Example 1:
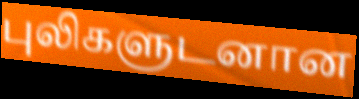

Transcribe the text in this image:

புலிகளுடனான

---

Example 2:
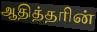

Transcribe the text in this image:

ஆதித்தரின்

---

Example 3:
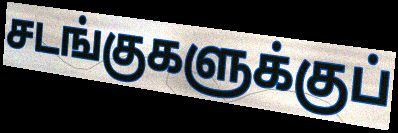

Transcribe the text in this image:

சடங்குகளுக்குப்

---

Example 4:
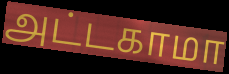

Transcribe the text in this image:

அட்டகாமா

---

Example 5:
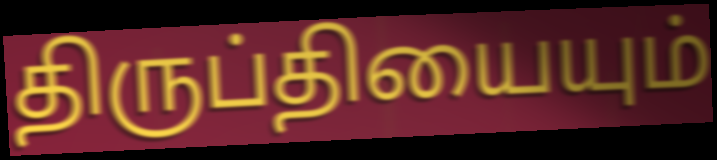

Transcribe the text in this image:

திருப்தியையும்